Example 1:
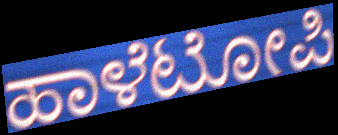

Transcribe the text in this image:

ಹಾಳೆಟೋಪಿ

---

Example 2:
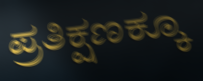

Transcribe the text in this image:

ಪ್ರತಿಕ್ಷಣಕ್ಕೂ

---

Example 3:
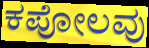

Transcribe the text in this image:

ಕಪೋಲವು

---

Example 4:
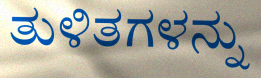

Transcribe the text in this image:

ತುಳಿತಗಳನ್ನು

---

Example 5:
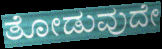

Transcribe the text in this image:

ತೋಡುವುದೇ